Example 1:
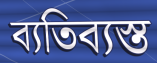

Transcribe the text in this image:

ব্যতিব্যস্ত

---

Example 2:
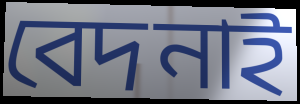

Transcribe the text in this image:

বেদনাই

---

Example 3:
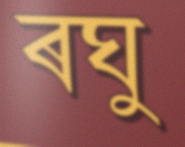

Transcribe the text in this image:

ৰঘু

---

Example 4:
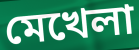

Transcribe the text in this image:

মেখেলা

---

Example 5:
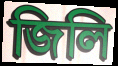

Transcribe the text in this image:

জিলি